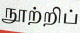
நூற்றிப்